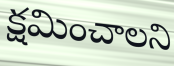
క్షమించాలని